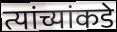
त्यांच्यांकडे